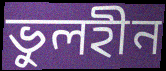
ভুলহীন